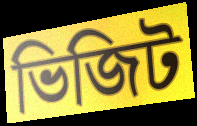
ভিজিট